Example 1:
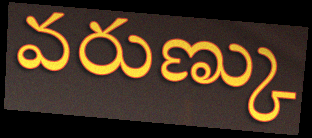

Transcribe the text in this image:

వరుణ్కు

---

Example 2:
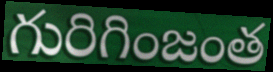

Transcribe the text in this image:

గురిగింజంత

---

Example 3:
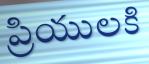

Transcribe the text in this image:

ప్రియులకి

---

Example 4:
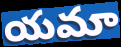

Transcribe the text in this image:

యమా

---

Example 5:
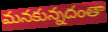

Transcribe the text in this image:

మనకున్నదంతా